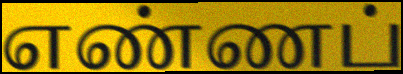
எண்ணப்